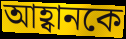
আহ্বানকে